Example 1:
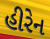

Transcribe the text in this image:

હીરેન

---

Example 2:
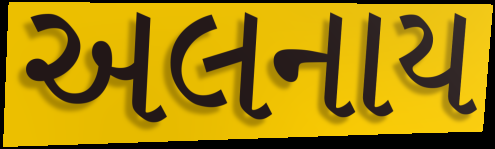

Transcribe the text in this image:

અલનાય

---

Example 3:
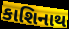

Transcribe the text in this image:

કાશિનાથ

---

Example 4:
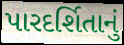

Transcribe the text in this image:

પારદર્શિતાનું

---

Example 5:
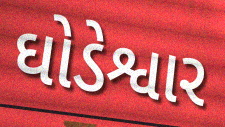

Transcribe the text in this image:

ઘોડેશ્વાર